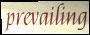
prevailing